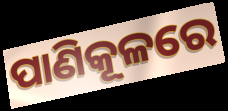
ପାଣିକୂଳରେ